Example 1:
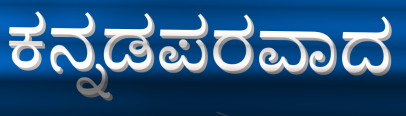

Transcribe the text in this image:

ಕನ್ನಡಪರವಾದ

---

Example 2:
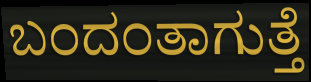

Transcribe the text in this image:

ಬಂದಂತಾಗುತ್ತೆ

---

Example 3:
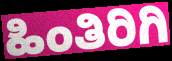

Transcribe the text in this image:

ಹಿಂತಿರಿಗಿ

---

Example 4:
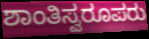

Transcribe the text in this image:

ಶಾಂತಿಸ್ವರೂಪರು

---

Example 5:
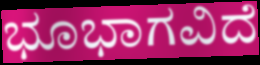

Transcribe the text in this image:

ಭೂಭಾಗವಿದೆ